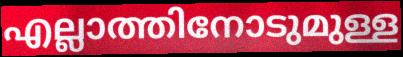
എല്ലാത്തിനോടുമുള്ള